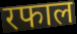
रफाल